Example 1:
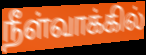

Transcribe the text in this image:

நீள்வாக்கில்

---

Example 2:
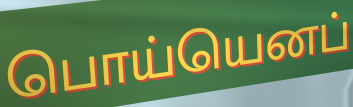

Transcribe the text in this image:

பொய்யெனப்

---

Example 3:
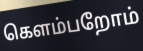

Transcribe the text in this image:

கெளம்பறோம்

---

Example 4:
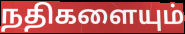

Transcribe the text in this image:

நதிகளையும்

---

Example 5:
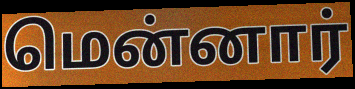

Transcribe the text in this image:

மென்னார்